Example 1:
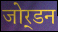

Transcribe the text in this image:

जोर्डन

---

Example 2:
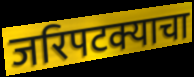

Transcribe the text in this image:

जरिपटक्याचा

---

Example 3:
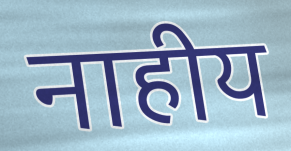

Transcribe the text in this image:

नाहीय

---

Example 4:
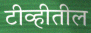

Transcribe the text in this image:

टीव्हीतील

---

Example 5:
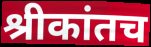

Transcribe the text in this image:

श्रीकांतच